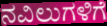
ನವಿಲುಗಳಿಗೆ